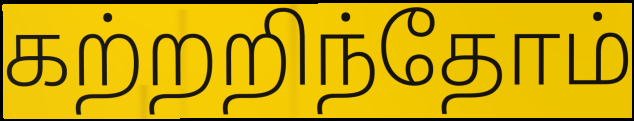
கற்றறிந்தோம்